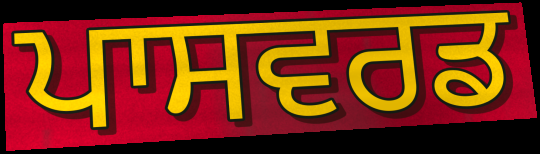
ਪਾਸਵਰਡ